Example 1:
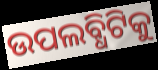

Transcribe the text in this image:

ଉପଲବ୍ଧିଟିକୁ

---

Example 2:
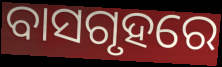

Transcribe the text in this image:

ବାସଗୃହରେ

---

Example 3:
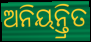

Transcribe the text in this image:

ଅନିୟନ୍ତ୍ରିତ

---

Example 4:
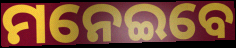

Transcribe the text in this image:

ମନେଇବେ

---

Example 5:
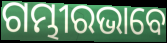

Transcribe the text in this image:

ଗମ୍ଭୀରଭାବେ